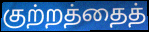
குற்றத்தைத்